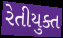
રેતીયુક્ત